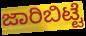
ಜಾರಿಬಿಟ್ಟೆ